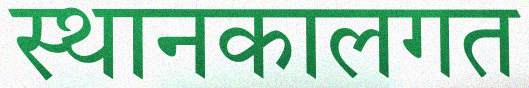
स्थानकालगत